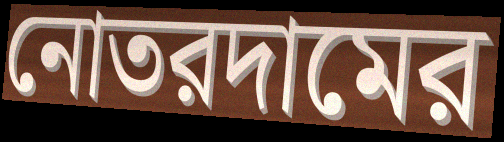
নোতরদামের